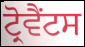
ਟ੍ਰੋਵੈਂਟਸ